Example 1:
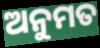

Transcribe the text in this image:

ଅନୁମତ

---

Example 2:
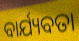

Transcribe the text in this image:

ବାର୍ଯ୍ୟବତା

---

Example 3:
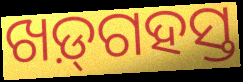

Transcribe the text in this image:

ଖଡ଼୍‌ଗହସ୍ତ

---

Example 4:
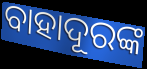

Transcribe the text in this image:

ବାହାଦୂରଙ୍କ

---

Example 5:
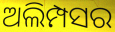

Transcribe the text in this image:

ଅଲିମ୍ପସର